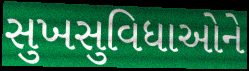
સુખસુવિધાઓને